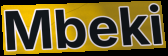
Mbeki